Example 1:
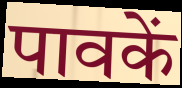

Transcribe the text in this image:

पावकें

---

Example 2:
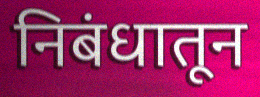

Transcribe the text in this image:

निबंधातून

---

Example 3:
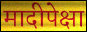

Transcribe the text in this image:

मादीपेक्षा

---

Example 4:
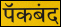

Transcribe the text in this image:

पॅकबंद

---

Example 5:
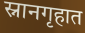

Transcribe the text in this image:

स्नानगृहात